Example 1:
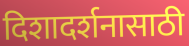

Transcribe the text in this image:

दिशादर्शनासाठी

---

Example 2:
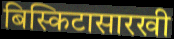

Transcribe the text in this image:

बिस्किटासारखी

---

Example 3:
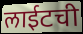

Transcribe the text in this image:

लाईटची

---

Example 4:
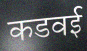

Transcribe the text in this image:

कडवई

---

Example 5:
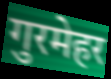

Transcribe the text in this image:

गुरमेहर